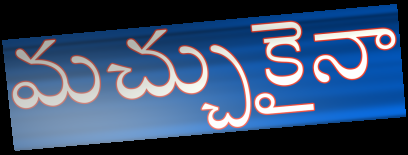
మచ్చుకైనా